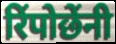
रिंपोछेंनी